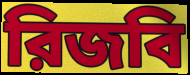
রিজবি